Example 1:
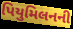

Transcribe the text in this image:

પિયુમિલનની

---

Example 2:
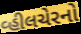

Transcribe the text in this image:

વ્હીલચેરનો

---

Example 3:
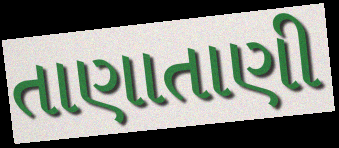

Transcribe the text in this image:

તાણાતાણી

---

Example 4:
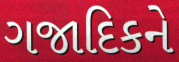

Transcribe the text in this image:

ગજાદિકને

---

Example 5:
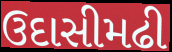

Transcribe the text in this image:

ઉદાસીમઢી